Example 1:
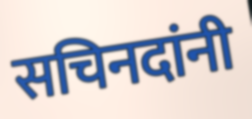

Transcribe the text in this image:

सचिनदांनी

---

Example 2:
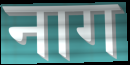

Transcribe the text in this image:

नाग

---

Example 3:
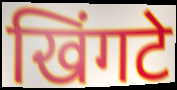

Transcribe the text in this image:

खिंगटे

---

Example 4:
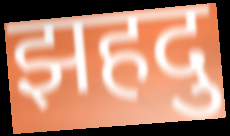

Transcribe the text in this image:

झहदु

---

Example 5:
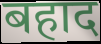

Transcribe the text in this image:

बहाद